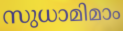
സുധാമിമാം